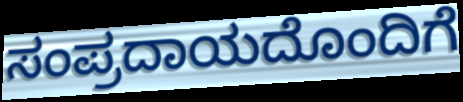
ಸಂಪ್ರದಾಯದೊಂದಿಗೆ